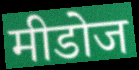
मीडोज